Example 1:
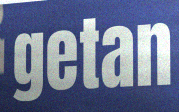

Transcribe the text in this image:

getan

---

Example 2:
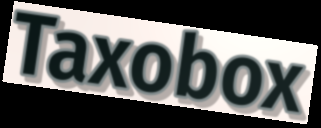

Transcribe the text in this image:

Taxobox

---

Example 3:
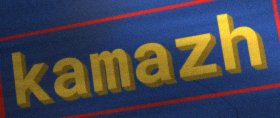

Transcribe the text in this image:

kamazh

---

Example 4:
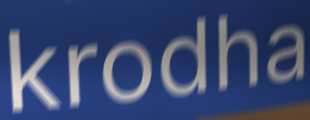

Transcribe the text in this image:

krodha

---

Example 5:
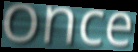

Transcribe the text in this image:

once